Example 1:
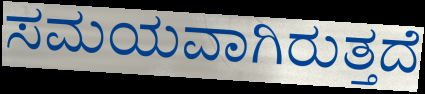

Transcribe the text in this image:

ಸಮಯವಾಗಿರುತ್ತದೆ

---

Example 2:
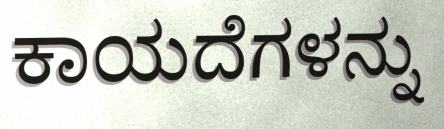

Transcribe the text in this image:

ಕಾಯದೆಗಳನ್ನು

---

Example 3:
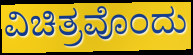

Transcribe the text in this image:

ವಿಚಿತ್ರವೊಂದು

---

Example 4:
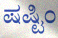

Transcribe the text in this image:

ಷಷ್ಟಿಂ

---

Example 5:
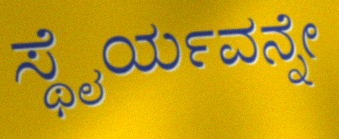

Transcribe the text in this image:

ಸ್ಥೈರ್ಯವನ್ನೇ